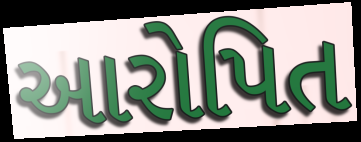
આરોપિત